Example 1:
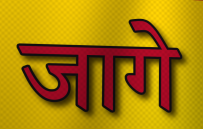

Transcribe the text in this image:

जागे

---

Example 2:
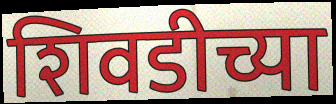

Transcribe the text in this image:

शिवडीच्या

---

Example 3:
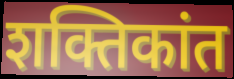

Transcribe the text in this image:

शक्तिकांत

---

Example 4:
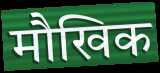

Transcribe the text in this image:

मौखिक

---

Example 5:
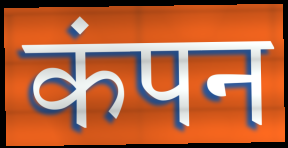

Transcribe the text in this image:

कंपन